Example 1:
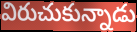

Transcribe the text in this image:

విరుచుకున్నాడు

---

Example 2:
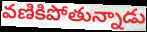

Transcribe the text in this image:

వణికిపోతున్నాడు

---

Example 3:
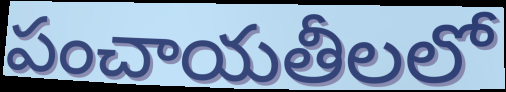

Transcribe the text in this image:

పంచాయతీలలో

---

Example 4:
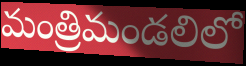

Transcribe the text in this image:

మంత్రిమండలిలో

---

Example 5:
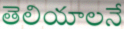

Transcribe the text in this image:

తెలియాలనే